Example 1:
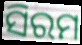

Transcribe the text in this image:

ସିରମ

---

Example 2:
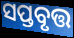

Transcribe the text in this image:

ସପ୍ତବୃତ୍ତ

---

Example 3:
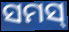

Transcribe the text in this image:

ସମସ୍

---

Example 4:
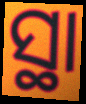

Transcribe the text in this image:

ସ୍ଥା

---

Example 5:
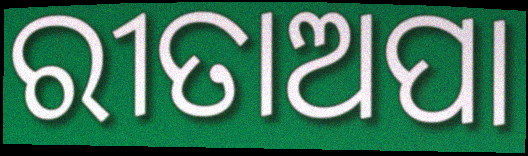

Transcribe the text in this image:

ରୀତାଅପା